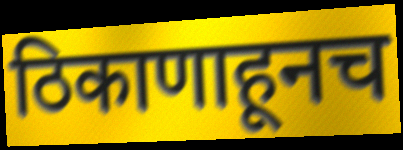
ठिकाणाहूनच